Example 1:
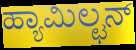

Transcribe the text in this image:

ಹ್ಯಾಮಿಲ್ಟನ್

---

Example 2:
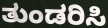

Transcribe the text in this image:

ತುಂಡರಿಸಿ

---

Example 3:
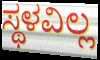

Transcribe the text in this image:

ಸ್ಥಳವಿಲ್ಲ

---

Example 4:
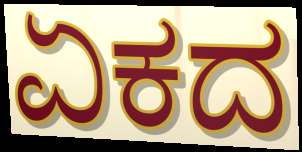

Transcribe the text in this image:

ಏಕದ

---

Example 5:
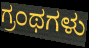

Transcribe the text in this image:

ಗ್ರಂಥಗಳು